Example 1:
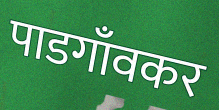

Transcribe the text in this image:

पाडगाँवकर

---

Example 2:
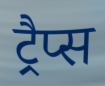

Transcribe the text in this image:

ट्रैप्स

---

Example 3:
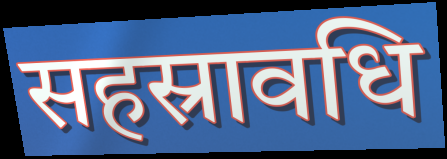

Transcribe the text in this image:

सहस्रावधि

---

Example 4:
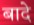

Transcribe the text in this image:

बादे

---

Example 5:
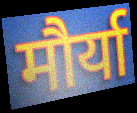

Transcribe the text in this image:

मौर्या